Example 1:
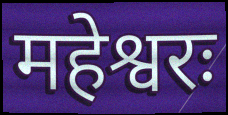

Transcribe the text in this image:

महेश्वरः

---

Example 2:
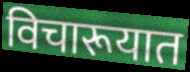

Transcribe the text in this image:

विचारूयात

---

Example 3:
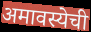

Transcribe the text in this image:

अमावस्येची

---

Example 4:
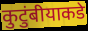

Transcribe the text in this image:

कुटुंबीयाकडे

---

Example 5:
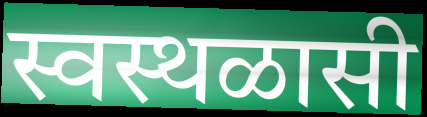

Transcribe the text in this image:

स्वस्थळासी